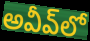
అవీవ్‌లో